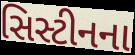
સિસ્ટીનના